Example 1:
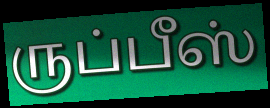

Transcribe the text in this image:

ருப்பீஸ்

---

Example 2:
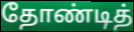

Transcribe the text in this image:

தோண்டித்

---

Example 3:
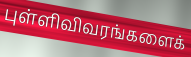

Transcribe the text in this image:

புள்ளிவிவரங்களைக்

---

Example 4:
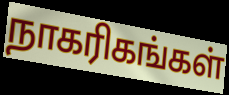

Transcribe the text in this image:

நாகரிகங்கள்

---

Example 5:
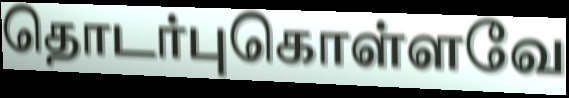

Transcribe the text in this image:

தொடர்புகொள்ளவே